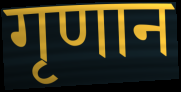
गृणान